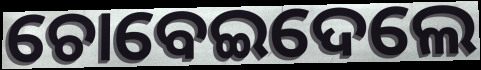
ଚୋବେଇଦେଲେ